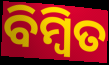
ବିମ୍ବିତ